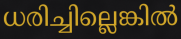
ധരിച്ചില്ലെങ്കിൽ